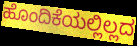
ಹೊಂದಿಕೆಯಲ್ಲಿಲ್ಲದ